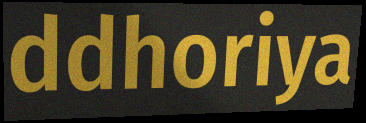
ddhoriya